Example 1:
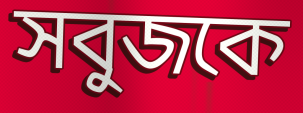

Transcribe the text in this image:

সবুজকে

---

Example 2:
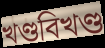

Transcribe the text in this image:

খণ্ডবিখণ্ড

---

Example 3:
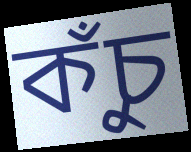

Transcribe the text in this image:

কঁচু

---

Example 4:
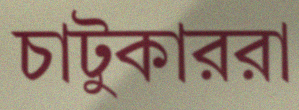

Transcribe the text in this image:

চাটুকাররা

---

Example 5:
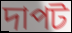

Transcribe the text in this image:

দাপট